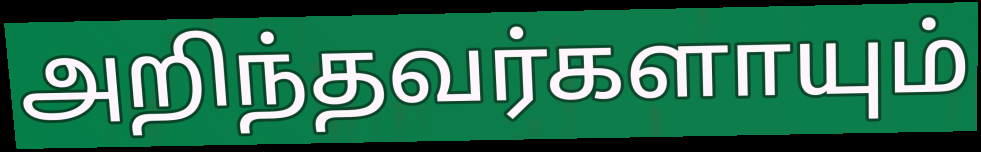
அறிந்தவர்களாயும்